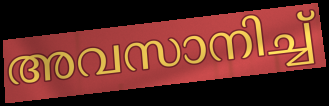
അവസാനിച്ച്